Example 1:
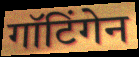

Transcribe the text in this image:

गॉटिंगेन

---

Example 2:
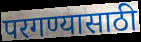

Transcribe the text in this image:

परगण्यासाठी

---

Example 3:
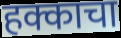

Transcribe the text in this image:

हक्काचा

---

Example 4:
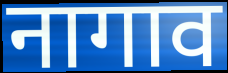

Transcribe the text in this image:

नागाव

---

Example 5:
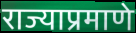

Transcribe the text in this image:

राज्याप्रमाणे